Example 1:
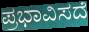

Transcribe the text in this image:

ಪ್ರಭಾವಿಸದೆ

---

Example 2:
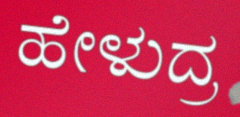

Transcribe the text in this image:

ಹೇಳುದ್ರ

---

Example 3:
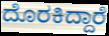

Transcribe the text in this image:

ದೊರಕಿದ್ದಾರೆ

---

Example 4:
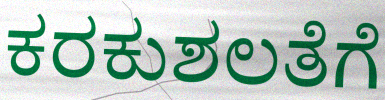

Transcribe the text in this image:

ಕರಕುಶಲತೆಗೆ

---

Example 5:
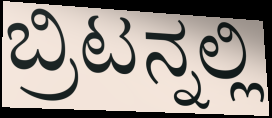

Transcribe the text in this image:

ಬ್ರಿಟನ್ನಲ್ಲಿ